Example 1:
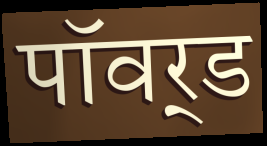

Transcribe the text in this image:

पॉवर्ड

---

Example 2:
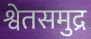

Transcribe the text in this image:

श्वेतसमुद्र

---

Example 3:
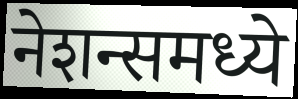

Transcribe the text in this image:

नेशन्समध्ये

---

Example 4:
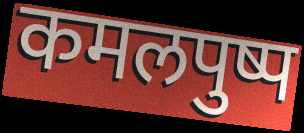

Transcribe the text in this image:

कमलपुष्प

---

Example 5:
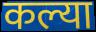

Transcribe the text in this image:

कल्या